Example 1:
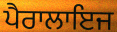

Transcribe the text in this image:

ਪੈਰਾਲਾਇਜ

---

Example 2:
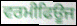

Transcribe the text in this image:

ਵਰਮੀਫਿਊਜ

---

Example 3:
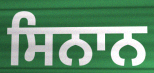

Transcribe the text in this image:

ਸਿਨਾਨ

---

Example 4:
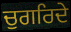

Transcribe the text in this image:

ਚੁਗਰਿਦੇ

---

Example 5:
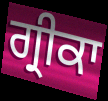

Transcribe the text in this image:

ਗ੍ਰੀਕਾ